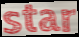
star